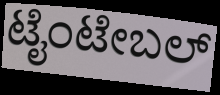
ಟೈಂಟೇಬಲ್